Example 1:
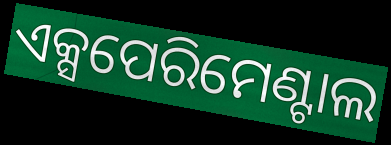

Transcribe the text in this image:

ଏକ୍ସପେରିମେଣ୍ଟାଲ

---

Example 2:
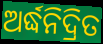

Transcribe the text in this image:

ଅର୍ଦ୍ଧନିଦ୍ରିତ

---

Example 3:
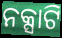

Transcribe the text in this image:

ନକ୍ସାଟି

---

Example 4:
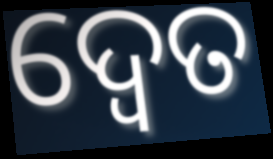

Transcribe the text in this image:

ଦ୍ବେତ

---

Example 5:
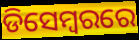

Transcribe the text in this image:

ଡିସେମ୍ବରରେ